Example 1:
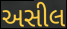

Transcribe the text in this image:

અસીલ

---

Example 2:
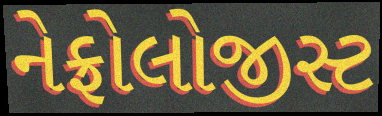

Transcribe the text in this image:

નેફ્રોલોજીસ્ટ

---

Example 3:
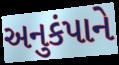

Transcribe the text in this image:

અનુકંપાને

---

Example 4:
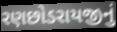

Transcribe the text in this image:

રણછોડરાયજીનું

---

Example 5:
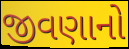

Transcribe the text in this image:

જીવણાનો